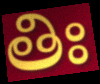
తిః